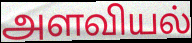
அளவியல்